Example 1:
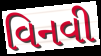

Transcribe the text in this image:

વિનવી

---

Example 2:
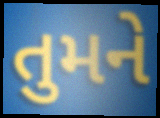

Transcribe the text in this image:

તુમને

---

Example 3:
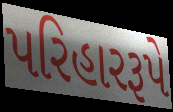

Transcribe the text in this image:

પરિહારરૂપે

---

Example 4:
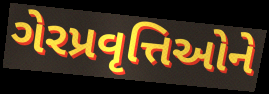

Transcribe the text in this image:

ગેરપ્રવૃત્તિઓને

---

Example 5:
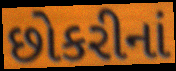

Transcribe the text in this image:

છોકરીનાં